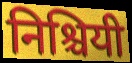
निश्चियी